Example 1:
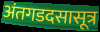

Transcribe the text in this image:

अंतगडदसासूत्र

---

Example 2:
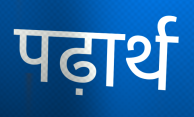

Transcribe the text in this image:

पढ़ार्थ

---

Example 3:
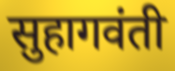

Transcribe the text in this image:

सुहागवंती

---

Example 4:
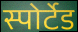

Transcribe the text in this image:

स्पोर्टेड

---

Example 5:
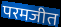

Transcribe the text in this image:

परमजीत